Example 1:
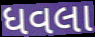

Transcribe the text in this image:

ધવલા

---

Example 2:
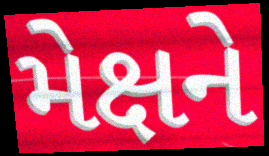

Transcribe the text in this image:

મેક્ષને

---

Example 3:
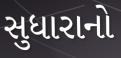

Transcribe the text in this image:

સુધારાનો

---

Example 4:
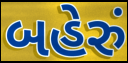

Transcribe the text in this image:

બહેરું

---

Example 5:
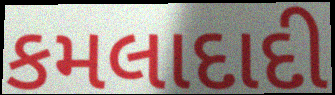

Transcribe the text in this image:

કમલાદાદી